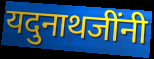
यदुनाथजींनी